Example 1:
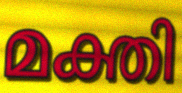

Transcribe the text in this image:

മക്തി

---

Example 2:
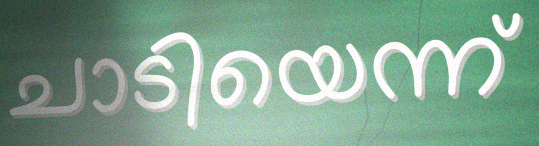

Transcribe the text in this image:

ചാടിയെന്ന്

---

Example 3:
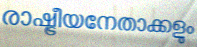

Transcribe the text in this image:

രാഷ്ട്രീയനേതാക്കളും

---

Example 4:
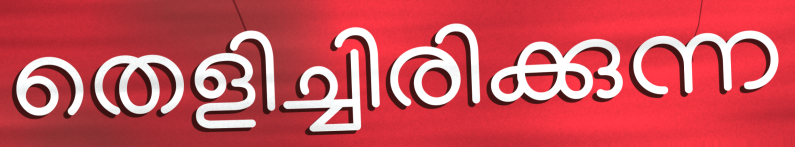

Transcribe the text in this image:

തെളിച്ചിരിക്കുന്ന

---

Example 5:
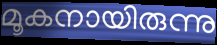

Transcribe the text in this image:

മൂകനായിരുന്നു